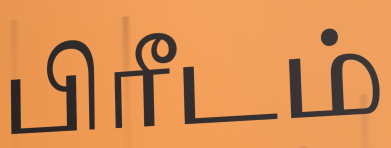
பிரீடம்